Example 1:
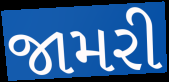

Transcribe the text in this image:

જામરી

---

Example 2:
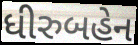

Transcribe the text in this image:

ધીરુબહેન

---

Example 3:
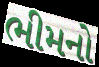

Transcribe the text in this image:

ભીમનો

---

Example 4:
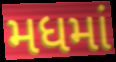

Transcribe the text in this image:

મધમાં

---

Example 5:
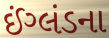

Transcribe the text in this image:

ઈંગ્લંડના